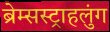
ब्रेम्सस्ट्राहलुंग